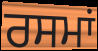
ਰਸਮਾਂ